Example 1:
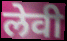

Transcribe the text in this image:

लेवी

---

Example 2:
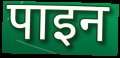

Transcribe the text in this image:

पाइन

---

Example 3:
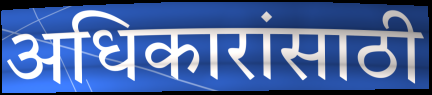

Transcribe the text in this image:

अधिकारांसाठी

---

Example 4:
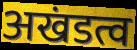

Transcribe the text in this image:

अखंडत्व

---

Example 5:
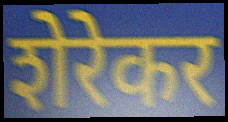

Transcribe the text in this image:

शेरेकर